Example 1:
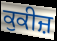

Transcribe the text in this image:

ਕੁਕੀਜ਼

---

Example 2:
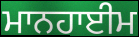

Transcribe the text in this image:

ਮਾਨਹਾਈਮ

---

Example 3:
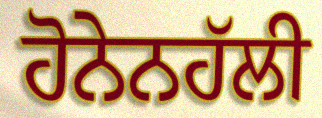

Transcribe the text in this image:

ਹੋਨੇਨਹੱਲੀ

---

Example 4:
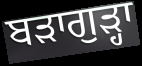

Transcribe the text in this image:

ਬੜਾਗੁੜ੍ਹਾ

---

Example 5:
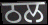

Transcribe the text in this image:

ਠਲ